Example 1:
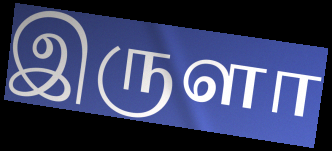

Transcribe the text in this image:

இருளா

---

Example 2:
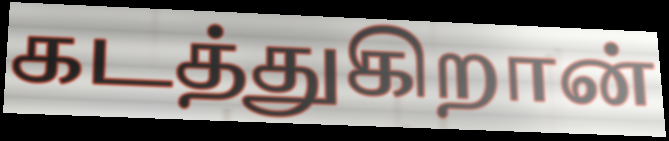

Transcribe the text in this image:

கடத்துகிறான்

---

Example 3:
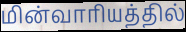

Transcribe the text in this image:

மின்வாரியத்தில்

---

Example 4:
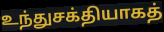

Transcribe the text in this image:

உந்துசக்தியாகத்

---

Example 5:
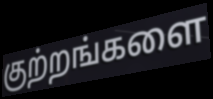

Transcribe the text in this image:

குற்றங்களை